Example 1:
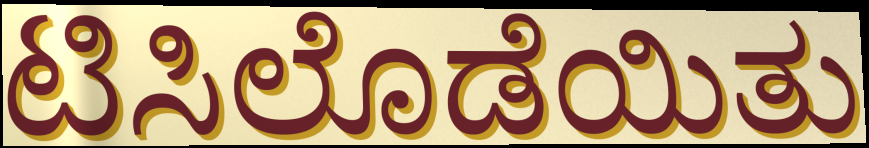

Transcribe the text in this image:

ಟಿಸಿಲೊಡೆಯಿತು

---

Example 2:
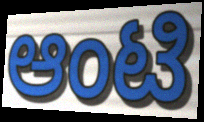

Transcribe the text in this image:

ಆಂಟಿ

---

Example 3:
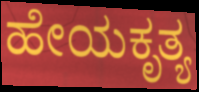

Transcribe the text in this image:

ಹೇಯಕೃತ್ಯ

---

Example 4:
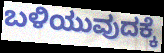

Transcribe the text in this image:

ಬಳಿಯುವುದಕ್ಕೆ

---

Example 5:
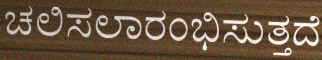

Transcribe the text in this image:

ಚಲಿಸಲಾರಂಭಿಸುತ್ತದೆ